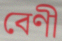
বেণী